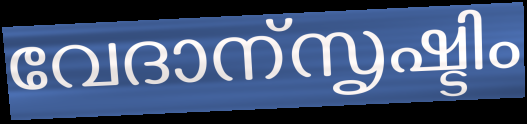
വേദാന്സൃഷ്ടിം